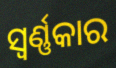
ସ୍ୱର୍ଣ୍ଣକାର